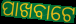
ପାଖବାଟେ